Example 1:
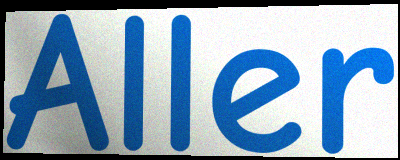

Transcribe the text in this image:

Aller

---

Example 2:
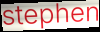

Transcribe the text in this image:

stephen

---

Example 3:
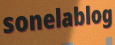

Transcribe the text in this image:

sonelablog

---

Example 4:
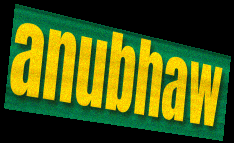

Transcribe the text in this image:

anubhaw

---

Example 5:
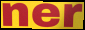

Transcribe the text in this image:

ner